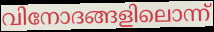
വിനോദങ്ങളിലൊന്ന്